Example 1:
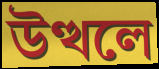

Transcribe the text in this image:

উত্থলে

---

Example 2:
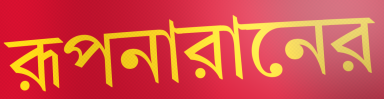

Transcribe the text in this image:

রূপনারানের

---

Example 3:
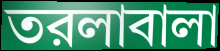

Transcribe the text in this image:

তরলাবালা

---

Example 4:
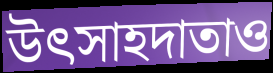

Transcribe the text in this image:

উৎসাহদাতাও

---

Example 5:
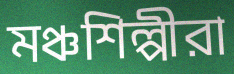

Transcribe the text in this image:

মঞ্চশিল্পীরা